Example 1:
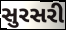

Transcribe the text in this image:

સુરસરી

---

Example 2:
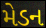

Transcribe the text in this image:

મેડન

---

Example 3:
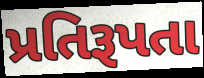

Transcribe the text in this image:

પ્રતિરૂપતા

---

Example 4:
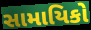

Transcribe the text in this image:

સામાયિકો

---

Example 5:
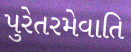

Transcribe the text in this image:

પુરેતરમેવાતિ